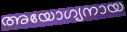
അയോഗ്യനായ